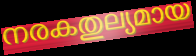
നരകതുല്യമായ